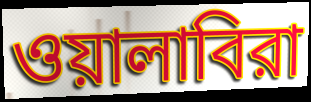
ওয়ালাবিরা